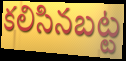
కలిసినబట్ట